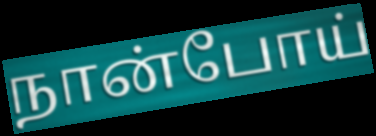
நான்போய்